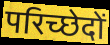
परिच्छेदों